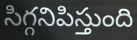
సిగ్గనిపిస్తుంది